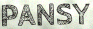
PANSY